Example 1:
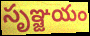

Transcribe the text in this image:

సృఞ్జయం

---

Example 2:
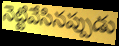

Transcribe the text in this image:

నెట్టివేసినప్పుడు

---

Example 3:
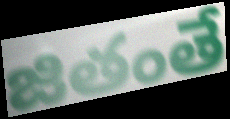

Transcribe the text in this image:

జితంతే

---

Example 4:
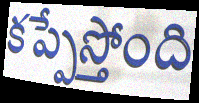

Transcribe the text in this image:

కప్పేస్తోంది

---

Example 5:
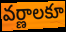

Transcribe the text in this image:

వర్ణాలకూ